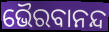
ଭୈରବାନନ୍ଦ